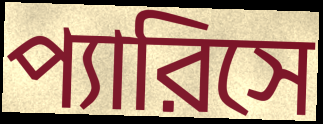
প্যারিসে